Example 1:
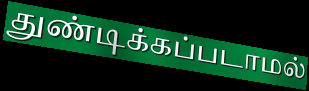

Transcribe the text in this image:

துண்டிக்கப்படாமல்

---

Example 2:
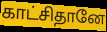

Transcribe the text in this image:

காட்சிதானே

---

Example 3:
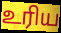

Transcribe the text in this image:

உரிய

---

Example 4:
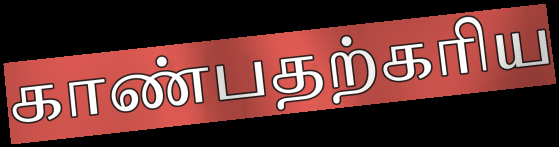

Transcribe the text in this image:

காண்பதற்கரிய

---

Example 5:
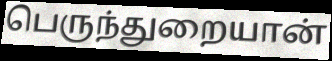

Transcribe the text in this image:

பெருந்துறையான்